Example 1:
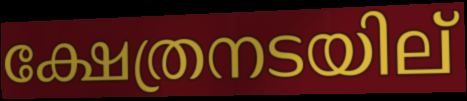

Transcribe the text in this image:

ക്ഷേത്രനടയില്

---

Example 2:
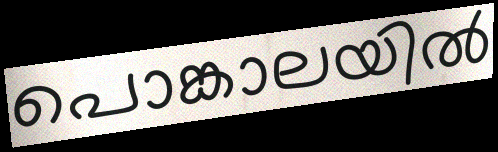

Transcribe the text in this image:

പൊങ്കാലയിൽ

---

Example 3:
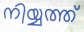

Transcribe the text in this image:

നിയ്യത്ത്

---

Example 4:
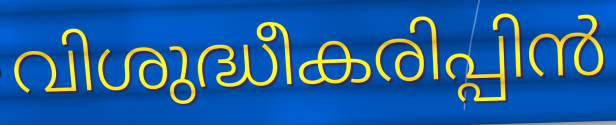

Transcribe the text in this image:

വിശുദ്ധീകരിപ്പിൻ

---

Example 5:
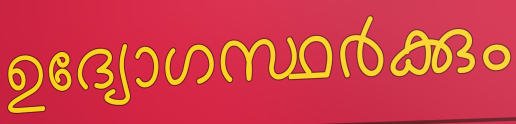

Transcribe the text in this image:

ഉദ്യോഗസ്ഥർക്കും